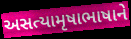
અસત્યામૃષાભાષાને